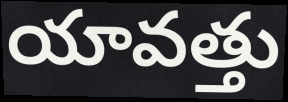
యావత్తు